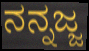
ನನ್ನಜ್ಜ